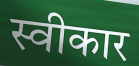
स्वीकार